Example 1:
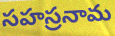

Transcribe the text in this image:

సహస్రనామ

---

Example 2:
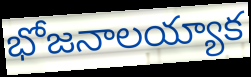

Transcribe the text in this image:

భోజనాలయ్యాక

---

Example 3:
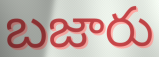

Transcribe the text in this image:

బజారు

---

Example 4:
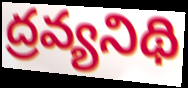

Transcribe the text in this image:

ద్రవ్యనిథి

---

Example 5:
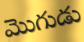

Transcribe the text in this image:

మొగుడు